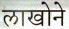
लाखोने